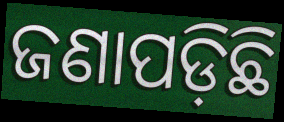
ଜଣାପଡ଼ିଛି